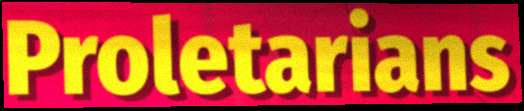
Proletarians